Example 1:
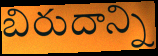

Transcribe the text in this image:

బిరుదాన్ని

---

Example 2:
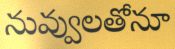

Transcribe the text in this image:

నువ్వులతోనూ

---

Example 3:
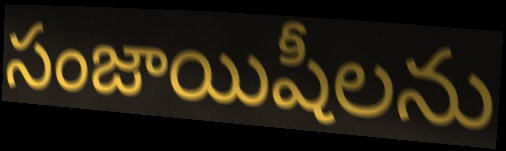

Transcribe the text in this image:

సంజాయిషీలను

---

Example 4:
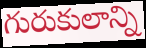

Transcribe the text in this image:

గురుకులాన్ని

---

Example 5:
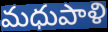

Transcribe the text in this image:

మధుపాళి